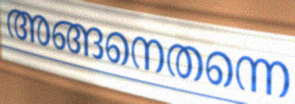
അങ്ങനെതന്നെ